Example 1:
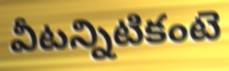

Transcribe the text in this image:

వీటన్నిటికంటె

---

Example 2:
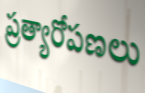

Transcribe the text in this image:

ప్రత్యారోపణలు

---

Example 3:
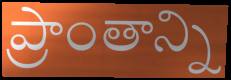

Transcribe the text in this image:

ప్రాంతాన్ని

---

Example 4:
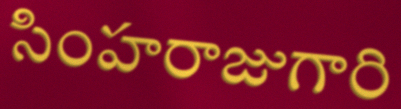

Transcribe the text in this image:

సింహరాజుగారి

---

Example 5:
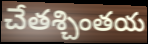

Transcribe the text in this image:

చేతశ్చింతయ